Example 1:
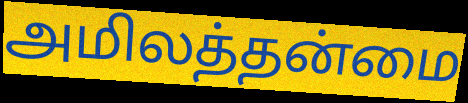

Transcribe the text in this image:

அமிலத்தன்மை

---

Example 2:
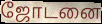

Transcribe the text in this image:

ஜோடனை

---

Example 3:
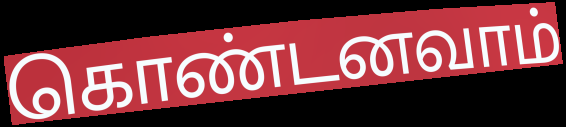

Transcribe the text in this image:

கொண்டனவாம்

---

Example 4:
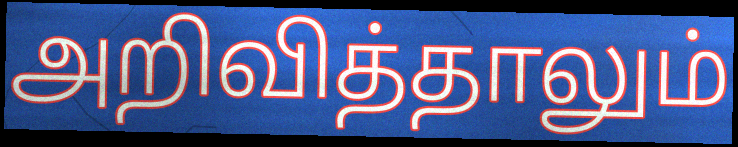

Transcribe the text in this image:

அறிவித்தாலும்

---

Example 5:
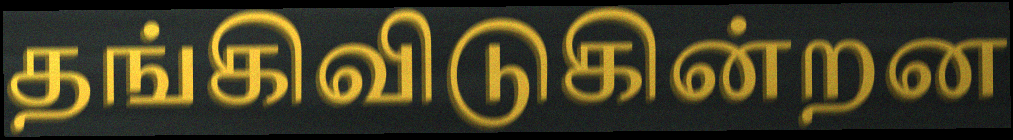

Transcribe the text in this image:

தங்கிவிடுகின்றன